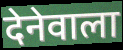
देनेवाला